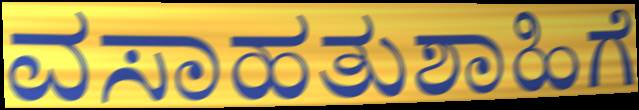
ವಸಾಹತುಶಾಹಿಗೆ